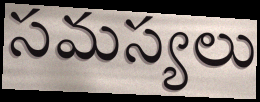
సమస్యలు